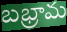
బభ్రామ